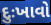
દુઃખાવો